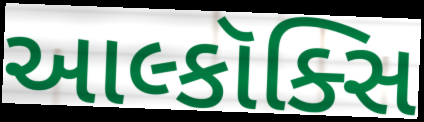
આલ્કૉક્સિ